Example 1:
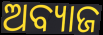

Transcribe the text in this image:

ଅବ୍ଯାଜ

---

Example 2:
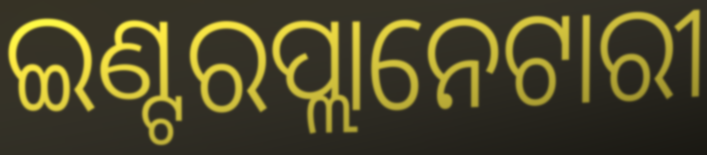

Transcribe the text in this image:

ଇଣ୍ଟରପ୍ଲାନେଟାରୀ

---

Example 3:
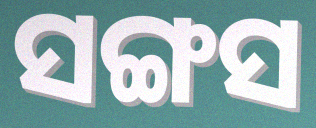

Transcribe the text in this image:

ସଙ୍ଗସ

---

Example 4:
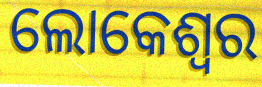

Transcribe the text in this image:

ଲୋକେଶ୍ୱର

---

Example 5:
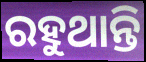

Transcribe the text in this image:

ରହୁଥାନ୍ତି